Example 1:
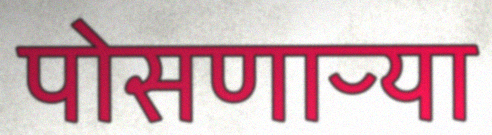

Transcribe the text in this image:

पोसणाऱ्या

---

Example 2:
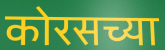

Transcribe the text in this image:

कोरसच्या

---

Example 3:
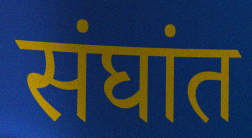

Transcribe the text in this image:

संघांत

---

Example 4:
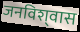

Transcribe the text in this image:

जनविश्वास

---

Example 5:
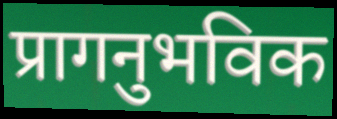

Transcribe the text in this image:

प्रागनुभविक